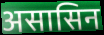
असासिन